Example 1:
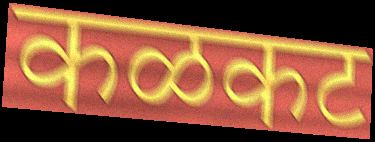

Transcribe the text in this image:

कळकट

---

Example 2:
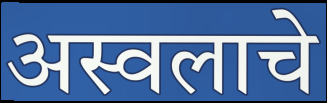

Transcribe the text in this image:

अस्वलाचे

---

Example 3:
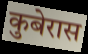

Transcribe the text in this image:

कुबेरास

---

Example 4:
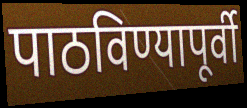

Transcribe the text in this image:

पाठविण्यापूर्वी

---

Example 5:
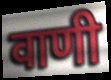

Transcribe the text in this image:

वाणी